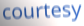
courtesy